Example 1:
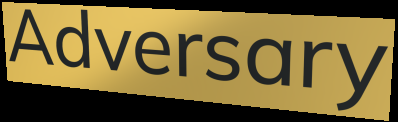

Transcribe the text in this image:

Adversary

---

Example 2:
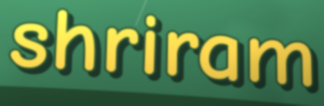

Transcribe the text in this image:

shriram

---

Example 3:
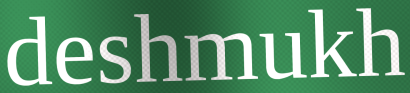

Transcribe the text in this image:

deshmukh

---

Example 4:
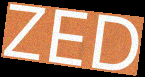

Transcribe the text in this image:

ZED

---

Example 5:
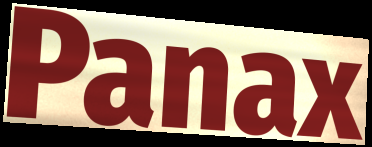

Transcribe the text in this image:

Panax